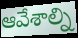
ఆవేశాల్ని